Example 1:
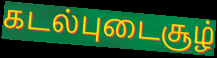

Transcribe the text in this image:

கடல்புடைசூழ்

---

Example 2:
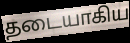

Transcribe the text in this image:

தடையாகிய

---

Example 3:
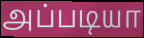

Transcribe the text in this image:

அப்படியா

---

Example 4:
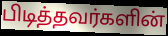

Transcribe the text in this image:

பிடித்தவர்களின்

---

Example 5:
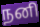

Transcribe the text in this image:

நனி